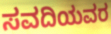
ಸವದಿಯವರ